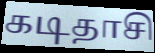
கடிதாசி